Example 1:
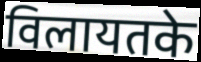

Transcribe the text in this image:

विलायतके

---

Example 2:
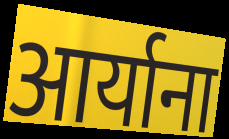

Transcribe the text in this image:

आर्याना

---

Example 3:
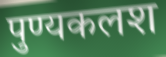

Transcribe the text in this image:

पुण्यकलश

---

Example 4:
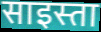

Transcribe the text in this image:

साइस्ता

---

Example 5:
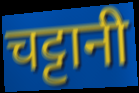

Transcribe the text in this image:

चट्टानी